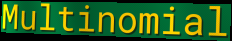
Multinomial